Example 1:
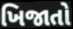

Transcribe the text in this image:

ખિજાતો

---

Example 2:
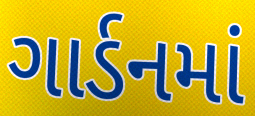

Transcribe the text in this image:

ગાર્ડનમાં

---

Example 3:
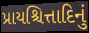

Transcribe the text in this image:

પ્રાયશ્ચિત્તાદિનું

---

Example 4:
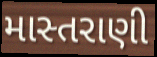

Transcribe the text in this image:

માસ્તરાણી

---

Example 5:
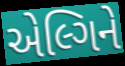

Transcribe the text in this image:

એલ્ગિને